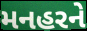
મનહરને